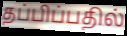
தப்பிப்பதில்